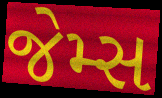
જેમ્સ